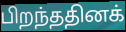
பிறந்ததினக்